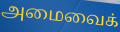
அமைவைக்